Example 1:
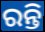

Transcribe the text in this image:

ରନ୍ତି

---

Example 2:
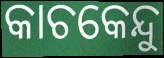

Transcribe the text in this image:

କାଚକେନ୍ଦୁ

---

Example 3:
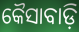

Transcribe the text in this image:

କୈସାବାଡ଼ି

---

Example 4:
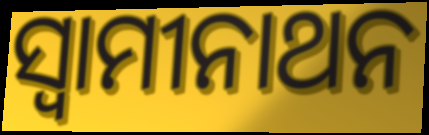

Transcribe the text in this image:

ସ୍ବାମୀନାଥନ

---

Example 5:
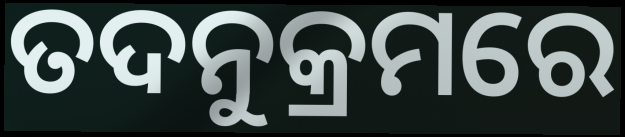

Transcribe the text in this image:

ତଦନୁକ୍ରମରେ